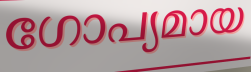
ഗോപ്യമായ